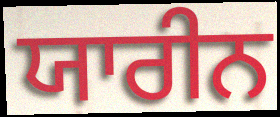
ਯਾਰੀਨ